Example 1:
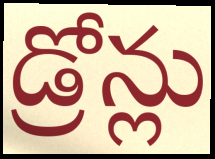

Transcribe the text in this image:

డ్రోన్లు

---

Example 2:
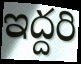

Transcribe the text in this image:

ఇద్దరి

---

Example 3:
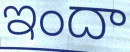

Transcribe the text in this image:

ఇందా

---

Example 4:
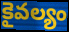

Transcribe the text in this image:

కైవల్యం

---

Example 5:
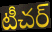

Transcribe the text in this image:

టీచర్